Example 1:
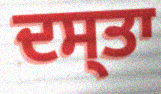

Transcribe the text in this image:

ਦਸ੍ਤਾ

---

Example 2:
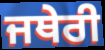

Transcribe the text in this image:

ਜਥੇਰੀ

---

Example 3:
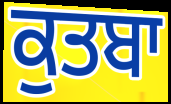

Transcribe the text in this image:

ਕੁਤਬਾ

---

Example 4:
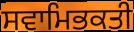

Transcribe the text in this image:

ਸਵਾਮਿਭਕਤੀ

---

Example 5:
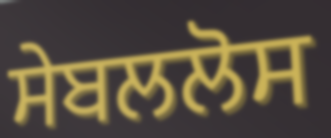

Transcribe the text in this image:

ਸੇਬਲਲੋਸ